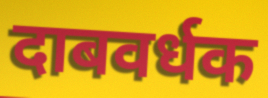
दाबवर्धक